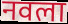
नवला